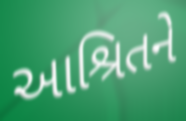
આશ્રિતને